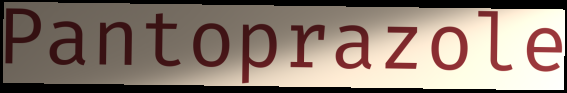
Pantoprazole